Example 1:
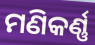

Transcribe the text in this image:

ମଣିକର୍ଣ୍ଣ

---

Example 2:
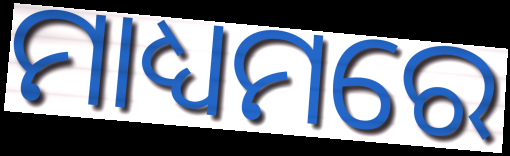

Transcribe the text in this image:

ମାଧ୍ୟମରେ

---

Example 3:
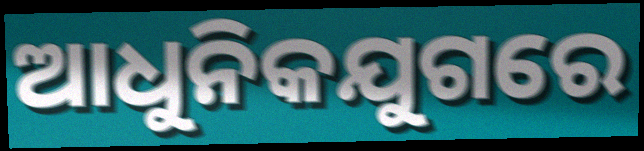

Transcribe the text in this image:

ଆଧୁନିକଯୁଗରେ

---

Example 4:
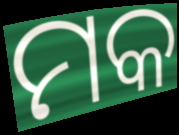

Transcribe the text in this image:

ମକ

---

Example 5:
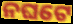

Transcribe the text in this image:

ନଘଟେ